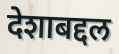
देशाबद्दल